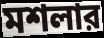
মশলার